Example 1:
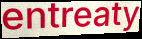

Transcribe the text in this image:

entreaty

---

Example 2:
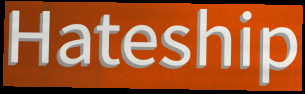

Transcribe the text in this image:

Hateship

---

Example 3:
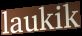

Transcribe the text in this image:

laukik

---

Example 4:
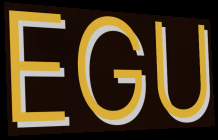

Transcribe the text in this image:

EGU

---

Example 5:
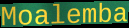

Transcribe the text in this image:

Moalemba